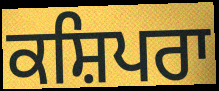
ਕਸ਼ਿਪਰਾ